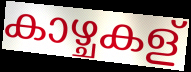
കാഴ്ചകള്